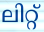
ലിറ്റ്